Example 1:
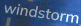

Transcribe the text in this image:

windstorm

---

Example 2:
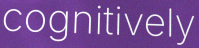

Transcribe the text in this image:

cognitively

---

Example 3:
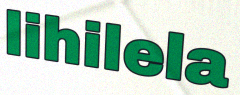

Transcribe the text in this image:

lihilela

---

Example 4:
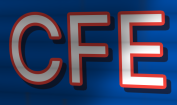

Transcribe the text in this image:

CFE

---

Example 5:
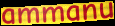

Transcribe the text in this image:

ammanu